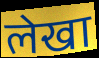
लेखा